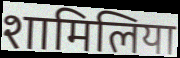
शामिलिया